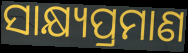
ସାକ୍ଷ୍ୟପ୍ରମାଣ